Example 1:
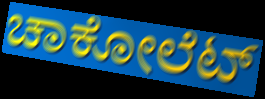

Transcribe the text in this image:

ಚಾಕೋಲೆಟ್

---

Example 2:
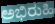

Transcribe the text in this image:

ಅಭಿರುಹಿ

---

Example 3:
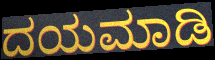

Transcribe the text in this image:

ದಯಮಾಡಿ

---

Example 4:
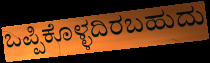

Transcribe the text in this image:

ಒಪ್ಪಿಕೊಳ್ಳದಿರಬಹುದು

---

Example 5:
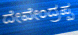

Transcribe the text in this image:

ದೇವೇಂದ್ರಪ್ಪ